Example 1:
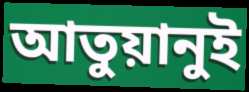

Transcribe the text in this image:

আতুয়ানুই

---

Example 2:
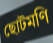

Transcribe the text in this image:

ছোটমণি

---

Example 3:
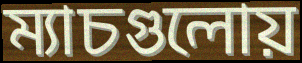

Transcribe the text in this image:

ম্যাচগুলোয়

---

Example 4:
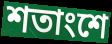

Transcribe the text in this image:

শতাংশে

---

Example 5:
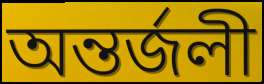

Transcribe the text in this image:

অন্তর্জলী